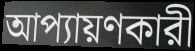
আপ্যায়ণকারী